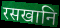
रसखानि